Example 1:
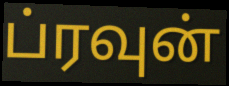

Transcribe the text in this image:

ப்ரவுன்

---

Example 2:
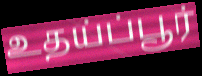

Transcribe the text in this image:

உதய்ப்பூர்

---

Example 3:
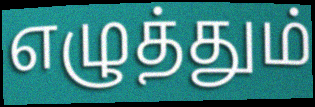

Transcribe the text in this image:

எழுத்தும்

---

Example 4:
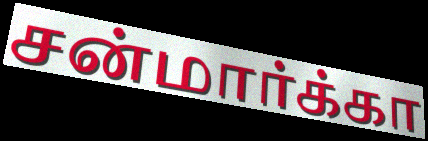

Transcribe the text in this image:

சன்மார்க்கா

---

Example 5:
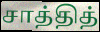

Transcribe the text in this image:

சாத்தித்